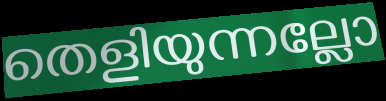
തെളിയുന്നല്ലോ